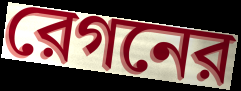
রেগনের